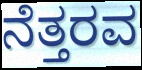
ನೆತ್ತರವ